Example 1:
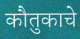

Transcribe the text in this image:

कौतुकाचे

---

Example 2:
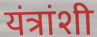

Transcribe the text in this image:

यंत्रांशी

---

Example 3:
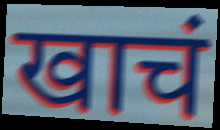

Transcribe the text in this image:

खाचं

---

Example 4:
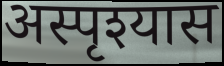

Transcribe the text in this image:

अस्पृश्यास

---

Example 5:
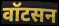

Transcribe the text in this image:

वॉटसन